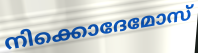
നിക്കൊദേമോസ്